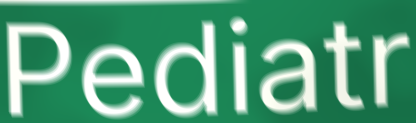
Pediatr